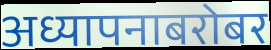
अध्यापनाबरोबर